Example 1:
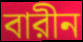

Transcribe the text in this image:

বারীন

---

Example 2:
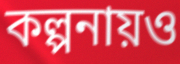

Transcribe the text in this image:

কল্পনায়ও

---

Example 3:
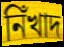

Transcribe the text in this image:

নিঁখাদ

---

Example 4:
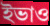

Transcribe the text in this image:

ইভাও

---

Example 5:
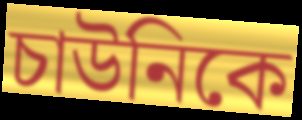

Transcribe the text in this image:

চাউনিকে